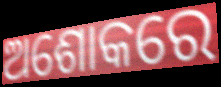
ଅଶୋକରେ